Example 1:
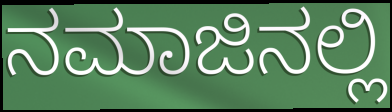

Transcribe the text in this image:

ನಮಾಜಿನಲ್ಲಿ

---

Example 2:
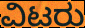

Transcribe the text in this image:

ವಿಟರು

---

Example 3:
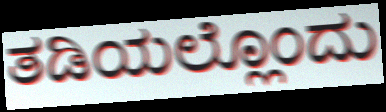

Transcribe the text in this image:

ತಡಿಯಲ್ಲೊಂದು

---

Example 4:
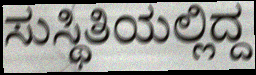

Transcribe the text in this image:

ಸುಸ್ಥಿತಿಯಲ್ಲಿದ್ದ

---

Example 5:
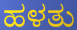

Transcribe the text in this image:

ಹಳತು